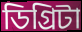
ডিগ্রিটা